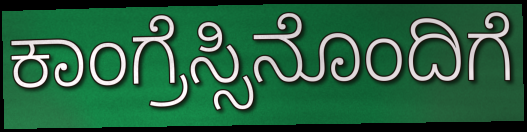
ಕಾಂಗ್ರೆಸ್ಸಿನೊಂದಿಗೆ